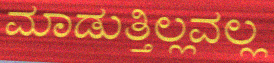
ಮಾಡುತ್ತಿಲ್ಲವಲ್ಲ